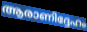
ആരാണിദ്ദേഹം